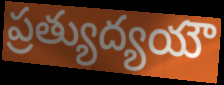
ప్రత్యుద్యయౌ